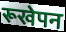
रूखेपन